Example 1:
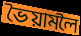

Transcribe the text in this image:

ভৈয়ামলৈ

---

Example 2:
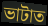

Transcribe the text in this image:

ভাটাত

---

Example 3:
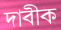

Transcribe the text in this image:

দাবীক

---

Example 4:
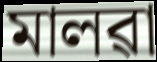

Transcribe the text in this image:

মালৱা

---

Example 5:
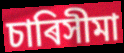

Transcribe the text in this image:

চাৰিসীমা